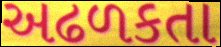
અઢળકતા